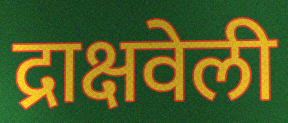
द्राक्षवेली